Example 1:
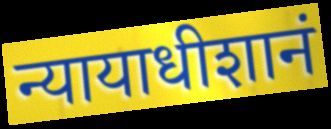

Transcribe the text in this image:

न्यायाधीशानं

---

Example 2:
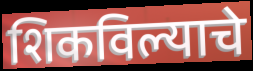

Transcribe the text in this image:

शिकविल्याचे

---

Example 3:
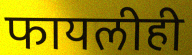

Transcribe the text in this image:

फायलीही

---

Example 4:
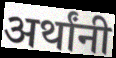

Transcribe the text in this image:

अर्थांनी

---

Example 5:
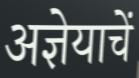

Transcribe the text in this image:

अज्ञेयाचें